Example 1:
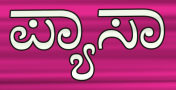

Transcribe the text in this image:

ಪ್ಯಾಸಾ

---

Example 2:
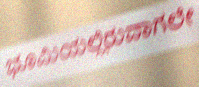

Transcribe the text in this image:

ಭೂಮಿಯಲ್ಲಿರುವಾಗಲೇ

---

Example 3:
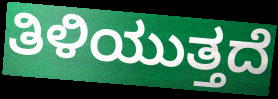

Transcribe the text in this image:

ತಿಳಿಯುತ್ತದೆ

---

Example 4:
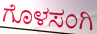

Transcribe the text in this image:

ಗೊಳಸಂಗಿ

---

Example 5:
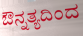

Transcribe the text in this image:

ಔನ್ನತ್ಯದಿಂದ